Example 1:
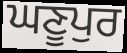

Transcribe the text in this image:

ਘਣੂਪੁਰ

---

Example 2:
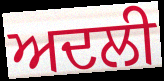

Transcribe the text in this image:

ਅਦਲੀ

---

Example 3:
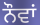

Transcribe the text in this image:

ਨੌਵਾਂ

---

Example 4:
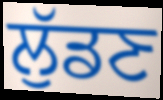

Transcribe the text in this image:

ਲੁੱਡਣ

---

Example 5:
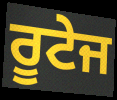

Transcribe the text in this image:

ਰੂਟੇਜ